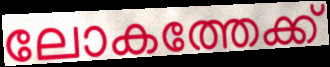
ലോകത്തേക്ക്